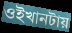
ওইখানটায়